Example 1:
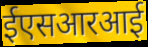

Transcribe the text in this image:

ईएसआरआई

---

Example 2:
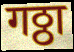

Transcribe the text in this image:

गठ्ठा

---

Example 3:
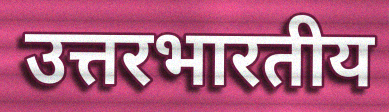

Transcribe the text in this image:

उत्तरभारतीय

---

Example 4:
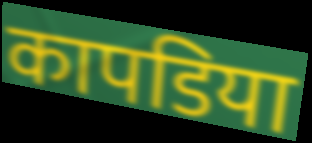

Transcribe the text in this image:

कापडिया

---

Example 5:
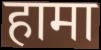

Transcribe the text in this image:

हामा